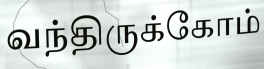
வந்திருக்கோம்